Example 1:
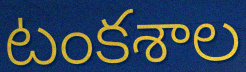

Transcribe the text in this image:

టంకశాల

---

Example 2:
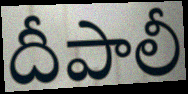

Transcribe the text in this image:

దీపాలీ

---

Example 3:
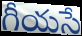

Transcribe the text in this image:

గీయసే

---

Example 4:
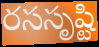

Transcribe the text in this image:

రససృష్టి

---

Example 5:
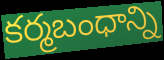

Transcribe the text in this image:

కర్మబంధాన్ని